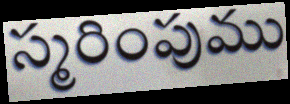
స్మరింపుము